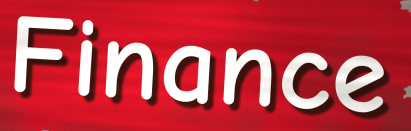
Finance